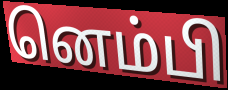
னெம்பி